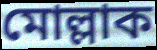
মোল্লাক